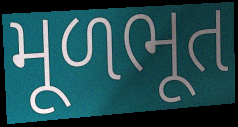
મૂળભૂત